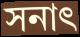
সনাৎ